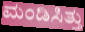
ಮಂಡಿಸಿತ್ತು